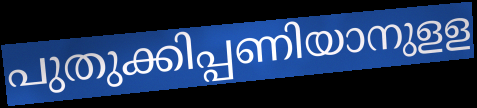
പുതുക്കിപ്പണിയാനുളള